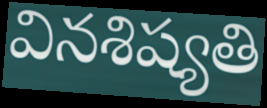
వినశిష్యతి